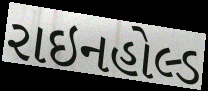
રાઇનહોલ્ડ